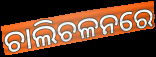
ଚାଲିଚଳନରେ